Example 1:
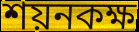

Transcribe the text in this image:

শয়নকক্ষ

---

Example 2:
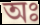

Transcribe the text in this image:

অঃ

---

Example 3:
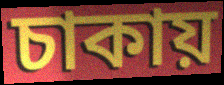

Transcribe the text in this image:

চাকায়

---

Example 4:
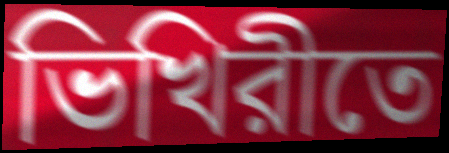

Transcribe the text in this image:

ভিখিরীতে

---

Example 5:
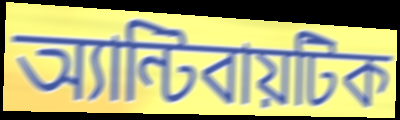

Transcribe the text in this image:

অ্যান্টিবায়টিক